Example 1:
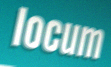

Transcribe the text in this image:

locum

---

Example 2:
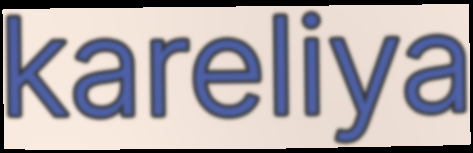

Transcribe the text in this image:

kareliya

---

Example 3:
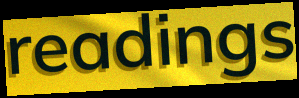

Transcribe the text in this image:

readings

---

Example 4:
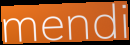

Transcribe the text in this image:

mendi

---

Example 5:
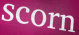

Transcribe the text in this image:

scorn